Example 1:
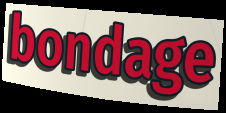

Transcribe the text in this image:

bondage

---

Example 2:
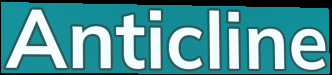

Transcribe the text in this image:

Anticline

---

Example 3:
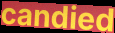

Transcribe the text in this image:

candied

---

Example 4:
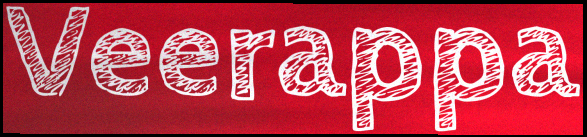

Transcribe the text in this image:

Veerappa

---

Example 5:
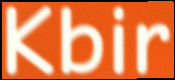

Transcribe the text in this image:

Kbir